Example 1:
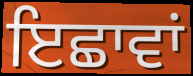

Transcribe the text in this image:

ਇਛਾਵਾਂ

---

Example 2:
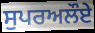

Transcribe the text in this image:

ਸੁਪਰਅਲੌਏ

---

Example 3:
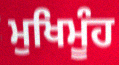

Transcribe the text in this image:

ਮੁਖਿਮੂੰਹ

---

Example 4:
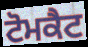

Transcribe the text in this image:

ਟੋਮਕੈਟ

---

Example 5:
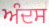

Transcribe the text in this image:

ਅੰਦਸ